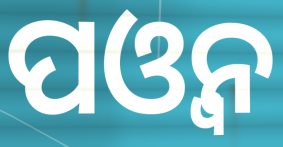
ପଓ୍ବନ